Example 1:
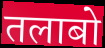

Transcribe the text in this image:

तलाबो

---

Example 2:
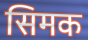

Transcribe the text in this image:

सिमक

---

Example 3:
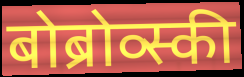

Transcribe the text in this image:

बोब्रोव्स्की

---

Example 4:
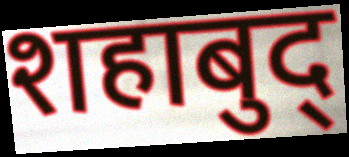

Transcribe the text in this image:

शहाबुद्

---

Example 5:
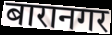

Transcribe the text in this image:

बारानगर